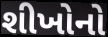
શીખોનો